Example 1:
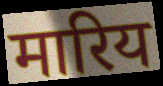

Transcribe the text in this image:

मारिय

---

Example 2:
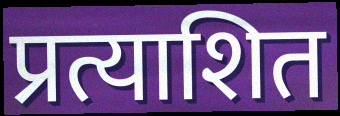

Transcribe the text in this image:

प्रत्याशित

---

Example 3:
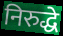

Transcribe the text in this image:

निरुद्धे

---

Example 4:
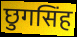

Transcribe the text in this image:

छुगसिंह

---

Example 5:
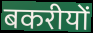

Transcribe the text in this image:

बकरीयों